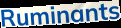
Ruminants